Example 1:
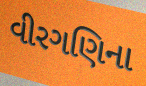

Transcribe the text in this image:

વીરગણિના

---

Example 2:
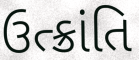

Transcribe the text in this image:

ઉત્ક્રાંતિ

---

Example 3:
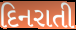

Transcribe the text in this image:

દિનરાતી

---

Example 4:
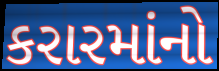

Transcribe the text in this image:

કરારમાંનો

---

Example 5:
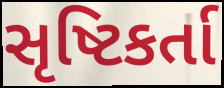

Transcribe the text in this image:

સૃષ્ટિકર્તા